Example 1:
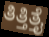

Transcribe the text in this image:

ತಿತ್ತಿತ್ತೈ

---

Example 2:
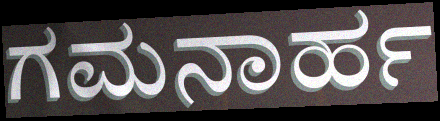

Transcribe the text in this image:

ಗಮನಾರ್ಹ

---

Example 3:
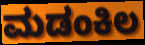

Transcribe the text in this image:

ಮಡಂಕಿಲ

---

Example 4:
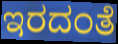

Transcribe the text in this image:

ಇರದಂತೆ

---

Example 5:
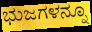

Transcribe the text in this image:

ಭುಜಗಳನ್ನೂ